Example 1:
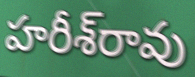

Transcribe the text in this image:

హరీశ్‌రావు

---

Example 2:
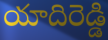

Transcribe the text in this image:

యాదిరెడ్డి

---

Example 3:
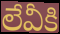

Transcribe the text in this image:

లేవీకి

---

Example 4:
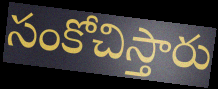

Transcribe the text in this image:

సంకోచిస్తారు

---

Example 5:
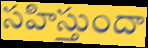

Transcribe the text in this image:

సహిస్తుందా